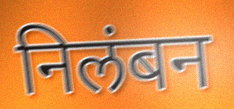
निलंबन